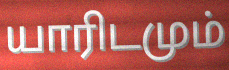
யாரிடமும்